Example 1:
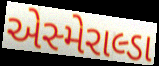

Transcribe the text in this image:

એસ્મેરાલ્ડા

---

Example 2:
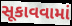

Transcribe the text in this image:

સૂકાવવામાં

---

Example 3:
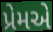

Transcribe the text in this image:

પ્રેમએ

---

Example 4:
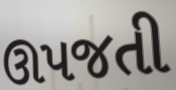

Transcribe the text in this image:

ઊપજતી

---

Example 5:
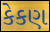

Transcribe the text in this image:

કેકણ